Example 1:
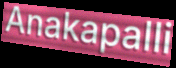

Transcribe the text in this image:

Anakapalli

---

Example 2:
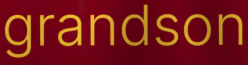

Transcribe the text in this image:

grandson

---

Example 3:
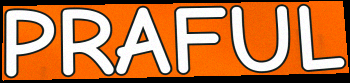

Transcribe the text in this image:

PRAFUL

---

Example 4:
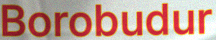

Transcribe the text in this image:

Borobudur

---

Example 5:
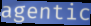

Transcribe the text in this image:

agentic